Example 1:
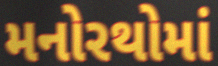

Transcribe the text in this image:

મનોરથોમાં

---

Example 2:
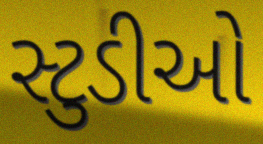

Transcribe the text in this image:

સ્ટુડીઓ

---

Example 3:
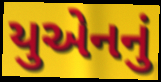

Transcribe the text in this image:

યુએનનું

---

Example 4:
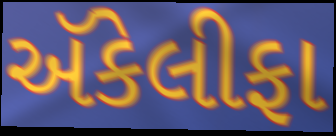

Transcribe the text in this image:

ઍકેલીફા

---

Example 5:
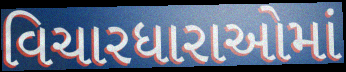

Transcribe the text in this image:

વિચારધારાઓમાં